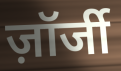
ज़ॉर्जी